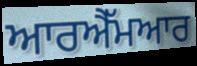
ਆਰਐੱਮਆਰ